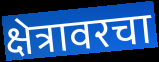
क्षेत्रावरचा